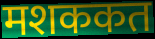
मशककत